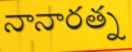
నానారత్న